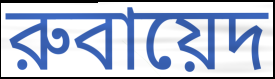
রুবায়েদ